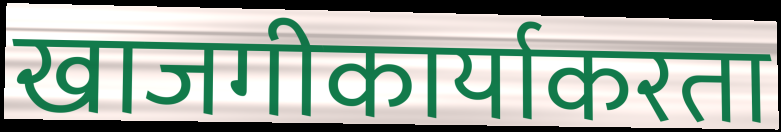
खाजगीकार्याकरता